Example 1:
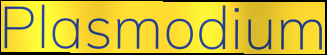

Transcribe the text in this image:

Plasmodium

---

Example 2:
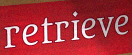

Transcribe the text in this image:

retrieve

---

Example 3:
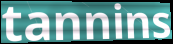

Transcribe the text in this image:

tannins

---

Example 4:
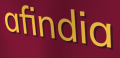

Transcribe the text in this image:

afindia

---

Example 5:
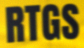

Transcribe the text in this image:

RTGS